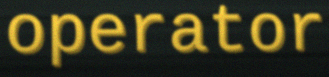
operator